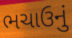
ભચાઉનું